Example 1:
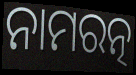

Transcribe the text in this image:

ନାମରତ୍ନ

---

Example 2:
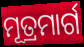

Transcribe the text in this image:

ମୂତ୍ରମାର୍ଗ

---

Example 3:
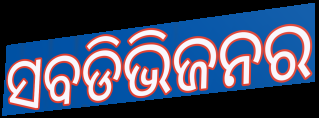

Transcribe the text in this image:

ସବଡିଭିଜନର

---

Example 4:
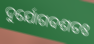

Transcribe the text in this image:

ଦୁର୍ଯୋଗବଶତଃ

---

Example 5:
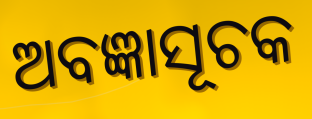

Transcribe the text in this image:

ଅବଜ୍ଞାସୂଚକ